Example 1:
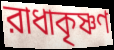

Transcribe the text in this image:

রাধাকৃষ্ণণ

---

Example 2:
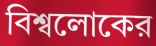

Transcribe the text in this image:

বিশ্বলোকের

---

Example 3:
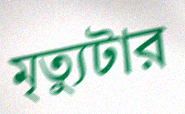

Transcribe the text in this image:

মৃত্যুটার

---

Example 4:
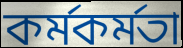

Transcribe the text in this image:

কর্মকর্মতা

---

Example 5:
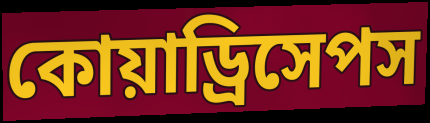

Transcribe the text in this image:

কোয়াড্রিসেপস